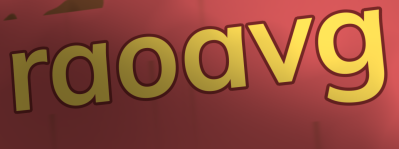
raoavg